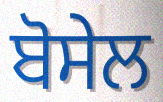
ਬੋਸੇਲ